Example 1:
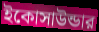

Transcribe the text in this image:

ইকোসাউন্ডার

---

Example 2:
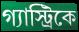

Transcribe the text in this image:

গ্যাস্ট্রিকে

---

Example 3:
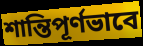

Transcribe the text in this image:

শান্তিপূর্ণভাবে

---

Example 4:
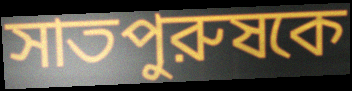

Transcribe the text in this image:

সাতপুরুষকে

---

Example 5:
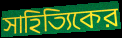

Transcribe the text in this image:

সাহিত্যিকের